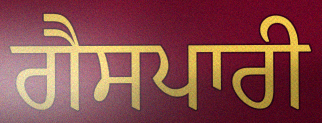
ਗੈਸਪਾਰੀ